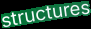
structures